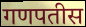
गणपतीस